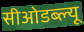
सीओडब्ल्यू